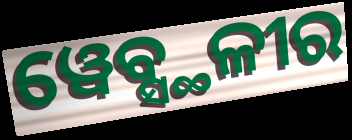
ୱେବ୍ସ୍ଥଳୀର